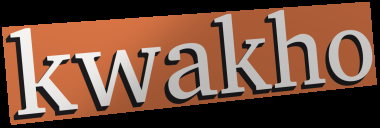
kwakho